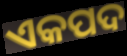
ଏକପଦ